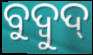
ବୁଦ୍ବୁଦ୍